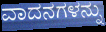
ವಾದನಗಳನ್ನು